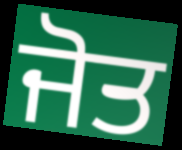
ਜੋਤ